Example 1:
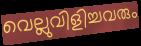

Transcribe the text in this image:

വെല്ലുവിളിച്ചവരും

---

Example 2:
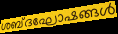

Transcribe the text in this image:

ശബ്ദഘോഷങ്ങൾ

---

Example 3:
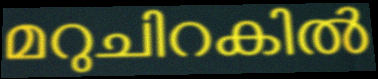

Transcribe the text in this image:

മറുചിറകിൽ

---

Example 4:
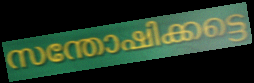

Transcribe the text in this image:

സന്തോഷിക്കട്ടെ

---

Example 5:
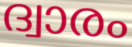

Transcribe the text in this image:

ദ്വാരം